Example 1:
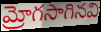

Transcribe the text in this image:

మ్రోగసాగినవి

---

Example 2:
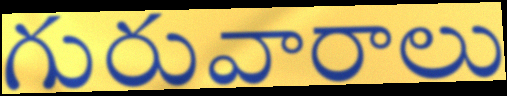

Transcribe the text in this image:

గురువారాలు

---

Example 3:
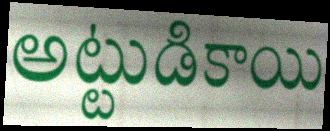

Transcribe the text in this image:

అట్టుడికాయి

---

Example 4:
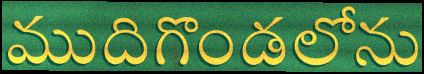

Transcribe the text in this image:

ముదిగొండలోను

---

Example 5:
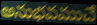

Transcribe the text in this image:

అనుభవముచే